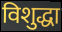
विशुद्धा